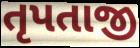
તૃપતાજી